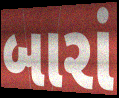
બારાં